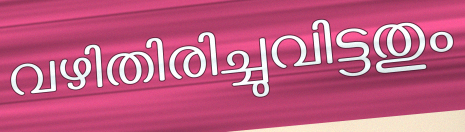
വഴിതിരിച്ചുവിട്ടതും